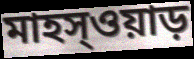
মাহস্ওয়াড়